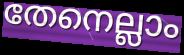
തേനെല്ലാം